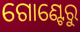
ଗୋଣ୍ଟେରୁ